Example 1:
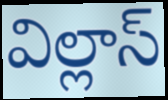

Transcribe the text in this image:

విల్లాస్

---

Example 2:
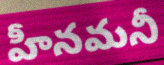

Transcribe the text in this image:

హీనమనీ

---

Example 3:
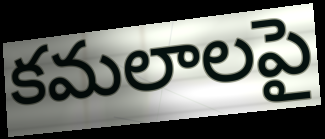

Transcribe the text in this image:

కమలాలపై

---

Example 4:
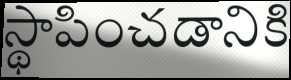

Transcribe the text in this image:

స్థాపించడానికి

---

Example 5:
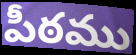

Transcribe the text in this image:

పీఠము